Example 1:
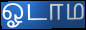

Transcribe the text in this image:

ஓடாம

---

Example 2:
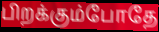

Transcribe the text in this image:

பிறக்கும்போதே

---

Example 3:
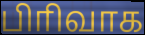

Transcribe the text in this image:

பிரிவாக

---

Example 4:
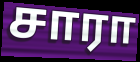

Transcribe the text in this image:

சாரா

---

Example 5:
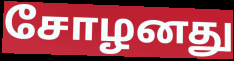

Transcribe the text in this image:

சோழனது